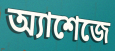
অ্যাশেজে